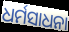
ଧର୍ମସାଧନା